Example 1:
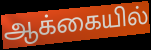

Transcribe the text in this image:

ஆக்கையில்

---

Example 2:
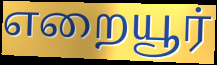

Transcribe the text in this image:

எறையூர்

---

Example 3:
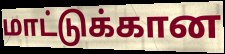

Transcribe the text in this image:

மாட்டுக்கான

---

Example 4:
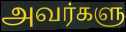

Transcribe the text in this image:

அவர்களு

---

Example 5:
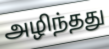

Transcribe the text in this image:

அழிந்தது